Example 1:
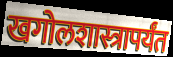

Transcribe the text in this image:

खगोलशास्त्रापर्यंत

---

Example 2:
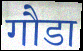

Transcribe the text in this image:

गौडा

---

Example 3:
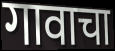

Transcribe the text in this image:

गावाचा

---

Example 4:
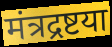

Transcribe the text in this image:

मंत्रद्रष्टया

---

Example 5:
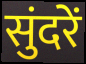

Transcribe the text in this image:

सुंदरें